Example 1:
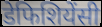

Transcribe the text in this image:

डेफिशियेंसी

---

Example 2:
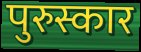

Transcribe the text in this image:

पुरुस्‍कार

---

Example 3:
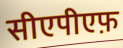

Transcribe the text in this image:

सीएपीएफ़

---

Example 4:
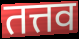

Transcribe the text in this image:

तत्तव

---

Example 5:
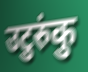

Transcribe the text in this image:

उटुरुंकु